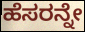
ಹೆಸರನ್ನೇ